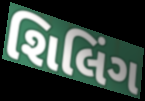
શિલિંગ